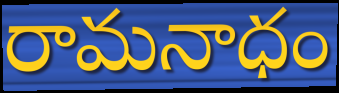
రామనాధం